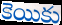
కెయికు